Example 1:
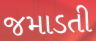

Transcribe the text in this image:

જમાડતી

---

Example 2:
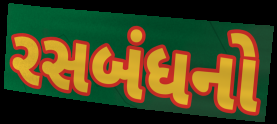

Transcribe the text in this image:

રસબંધનો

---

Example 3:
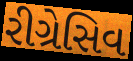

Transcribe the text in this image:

રીગ્રેસિવ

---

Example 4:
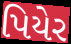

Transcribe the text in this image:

પિયેર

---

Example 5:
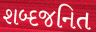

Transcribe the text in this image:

શબ્દજનિત